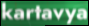
kartavya